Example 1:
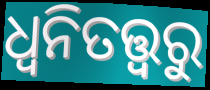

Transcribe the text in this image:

ଧ୍ୱନିତତ୍ତ୍ୱରୁ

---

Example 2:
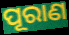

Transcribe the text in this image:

ପୂରାଣ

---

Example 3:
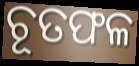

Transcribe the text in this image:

ଚୂତଫଳ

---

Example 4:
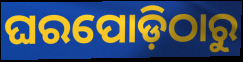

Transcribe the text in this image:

ଘରପୋଡ଼ିଠାରୁ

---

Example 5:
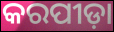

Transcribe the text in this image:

କରପୀଡ଼ା